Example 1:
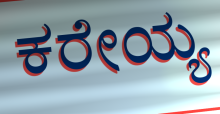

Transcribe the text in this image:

ಕರೇಯ್ಯ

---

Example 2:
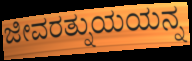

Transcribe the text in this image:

ಜೀವರತ್ನುಯಯನ್ನ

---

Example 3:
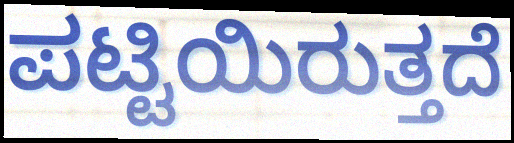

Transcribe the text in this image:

ಪಟ್ಟಿಯಿರುತ್ತದೆ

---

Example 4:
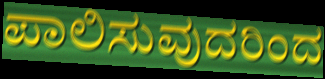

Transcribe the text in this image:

ಪಾಲಿಸುವುದರಿಂದ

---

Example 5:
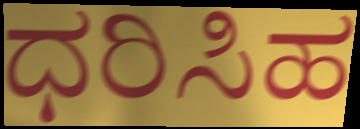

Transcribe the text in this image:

ಧರಿಸಿಹ